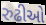
રુઢીઓ